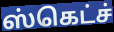
ஸ்கெட்ச்